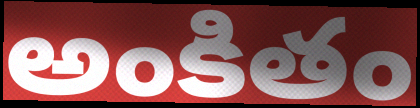
అంకితం